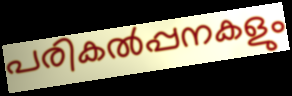
പരികൽപ്പനകളും